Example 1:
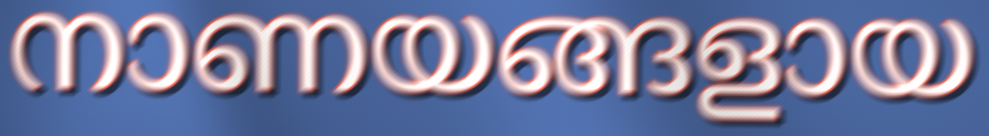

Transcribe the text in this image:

നാണയങ്ങളായ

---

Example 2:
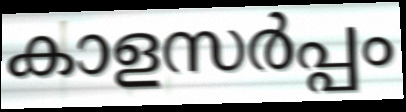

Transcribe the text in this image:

കാളസർപ്പം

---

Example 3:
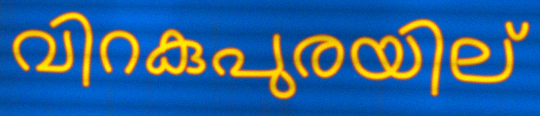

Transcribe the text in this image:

വിറകുപുരയില്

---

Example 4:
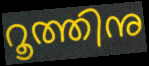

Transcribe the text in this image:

റൂത്തിനു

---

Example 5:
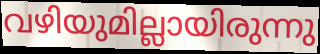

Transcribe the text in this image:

വഴിയുമില്ലായിരുന്നു